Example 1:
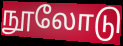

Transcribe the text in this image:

நூலோடு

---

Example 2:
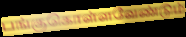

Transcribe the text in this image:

பங்குகொள்ளவேண்டும்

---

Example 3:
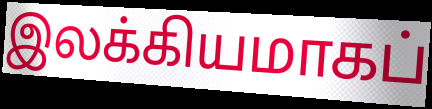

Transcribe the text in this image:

இலக்கியமாகப்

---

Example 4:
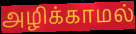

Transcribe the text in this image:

அழிக்காமல்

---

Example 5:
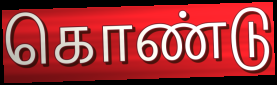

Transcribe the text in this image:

கொண்டு